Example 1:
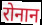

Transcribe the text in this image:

रोनान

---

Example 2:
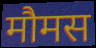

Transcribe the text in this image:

मौमस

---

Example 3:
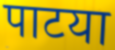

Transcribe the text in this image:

पाटया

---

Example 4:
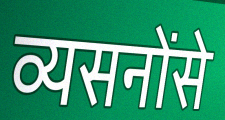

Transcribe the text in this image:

व्यसनोंसे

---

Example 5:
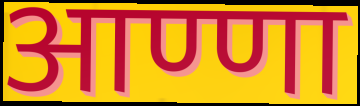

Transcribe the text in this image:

आण्णा